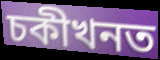
চকীখনত